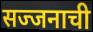
सज्जनाची